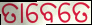
ତାବେତେ